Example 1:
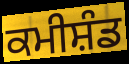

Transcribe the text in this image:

ਕਮੀਸ਼ੰਡ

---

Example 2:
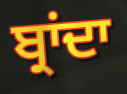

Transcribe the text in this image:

ਬ੍ਰਾਂਦਾ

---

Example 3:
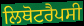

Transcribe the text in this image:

ਲਿਥੋਟਰੈਪਸੀ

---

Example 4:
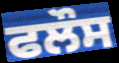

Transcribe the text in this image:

ਫਲੌਸ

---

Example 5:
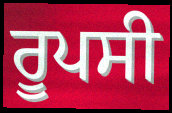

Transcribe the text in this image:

ਰੂਪਸੀ